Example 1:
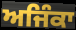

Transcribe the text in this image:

ਅਜਿੰਕਾ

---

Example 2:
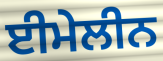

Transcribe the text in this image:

ਈਮੇਲੀਨ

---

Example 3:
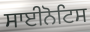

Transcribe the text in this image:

ਸਾਈਨੋਟਿਸ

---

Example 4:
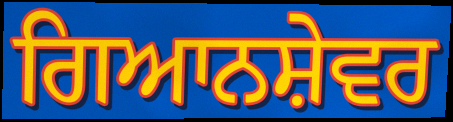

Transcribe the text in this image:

ਗਿਆਨਸ਼ੇਵਰ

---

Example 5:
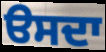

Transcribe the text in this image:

ੳਸਦਾ